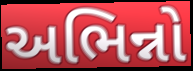
અભિન્નો